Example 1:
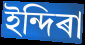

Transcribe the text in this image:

ইন্দিৰা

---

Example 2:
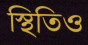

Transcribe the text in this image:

স্থিতিও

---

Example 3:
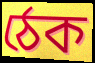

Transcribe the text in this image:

ঠেক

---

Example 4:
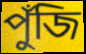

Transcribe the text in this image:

পুঁজি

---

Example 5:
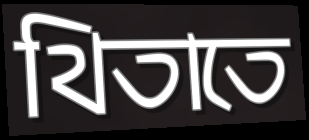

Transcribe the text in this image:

থিতাতে